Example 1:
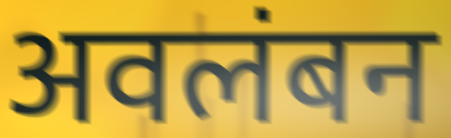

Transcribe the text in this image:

अवलंबन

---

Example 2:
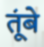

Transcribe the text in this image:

तूंबे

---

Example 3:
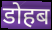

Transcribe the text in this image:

डोहब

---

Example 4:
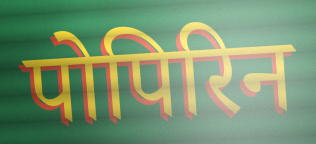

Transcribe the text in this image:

पोपिरिन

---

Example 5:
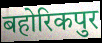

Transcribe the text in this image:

बहोरिकपुर